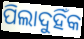
ପିଲାଦୁହିଁକ